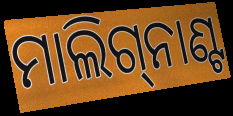
ମାଲିଗ୍‌ନାଣ୍ଟ